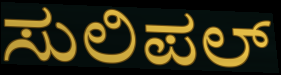
ಸುಲಿಪಲ್